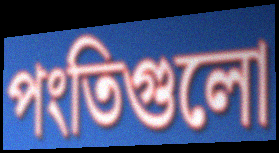
পংতিগুলো